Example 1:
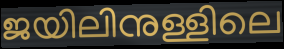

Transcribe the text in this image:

ജയിലിനുള്ളിലെ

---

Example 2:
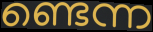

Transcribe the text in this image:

ണ്ടെന്ന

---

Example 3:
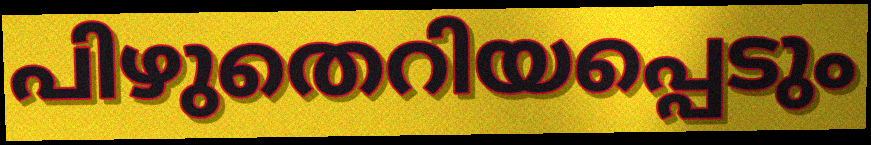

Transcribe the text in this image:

പിഴുതെറിയപ്പെടും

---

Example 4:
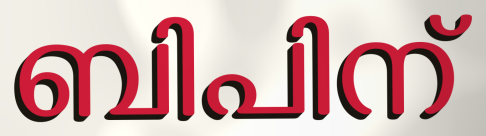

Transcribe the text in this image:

ബിപിന്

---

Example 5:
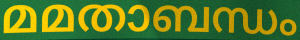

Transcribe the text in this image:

മമതാബന്ധം